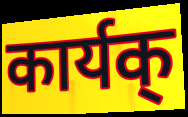
कार्यक्